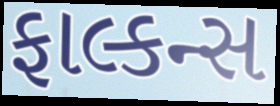
ફાલ્કન્સ